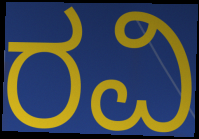
ರವಿ